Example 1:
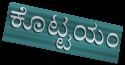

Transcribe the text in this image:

ಕೊಟ್ಟಯಂ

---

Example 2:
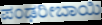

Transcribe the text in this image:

ಪಂಢರೀಬಾಯಿ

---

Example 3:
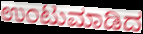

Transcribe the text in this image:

ಉಂಟುಮಾಡಿದ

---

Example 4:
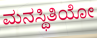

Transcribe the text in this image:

ಮನಸ್ಥಿತಿಯೋ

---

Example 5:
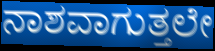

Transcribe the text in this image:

ನಾಶವಾಗುತ್ತಲೇ